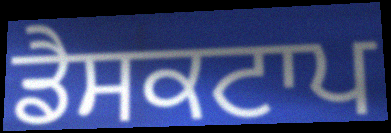
ਡੈਸਕਟਾਪ